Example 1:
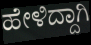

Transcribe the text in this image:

ಹೇಳಿದ್ದಾಗಿ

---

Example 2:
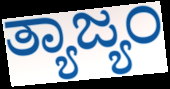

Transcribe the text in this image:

ತ್ಯಾಜ್ಯಂ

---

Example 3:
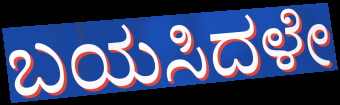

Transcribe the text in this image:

ಬಯಸಿದಳೇ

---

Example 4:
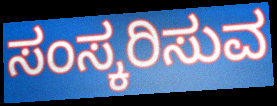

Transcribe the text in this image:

ಸಂಸ್ಕರಿಸುವ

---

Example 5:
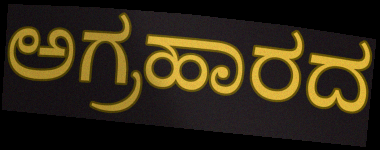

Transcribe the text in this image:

ಅಗ್ರಹಾರದ